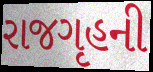
રાજગૃહની